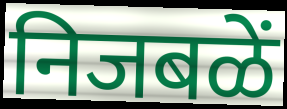
निजबळें